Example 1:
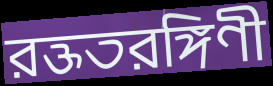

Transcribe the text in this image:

রক্ততরঙ্গিণী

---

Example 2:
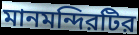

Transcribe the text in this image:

মানমন্দিরটির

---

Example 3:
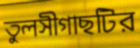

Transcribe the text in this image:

তুলসীগাছটির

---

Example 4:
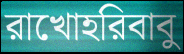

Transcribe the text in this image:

রাখোহরিবাবু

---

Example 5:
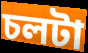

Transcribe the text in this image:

চলটা